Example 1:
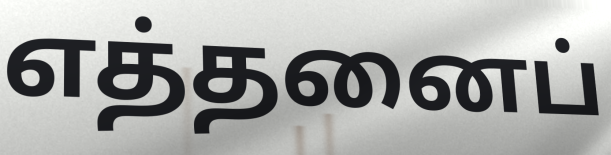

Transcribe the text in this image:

எத்தனைப்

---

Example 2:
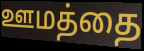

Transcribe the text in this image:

ஊமத்தை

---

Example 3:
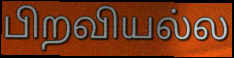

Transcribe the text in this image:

பிறவியல்ல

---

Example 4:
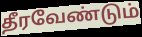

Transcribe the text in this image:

தீரவேண்டும்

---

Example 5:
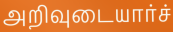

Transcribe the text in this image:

அறிவுடையார்ச்